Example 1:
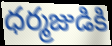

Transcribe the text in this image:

ధర్మజుడికి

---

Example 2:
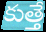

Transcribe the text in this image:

కుత్తే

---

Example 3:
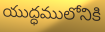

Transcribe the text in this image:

యుద్ధములోనికి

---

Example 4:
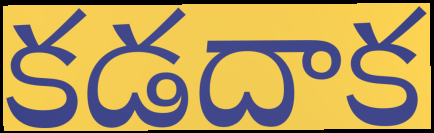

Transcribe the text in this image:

కడదాక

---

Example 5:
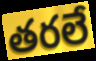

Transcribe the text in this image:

తరలే